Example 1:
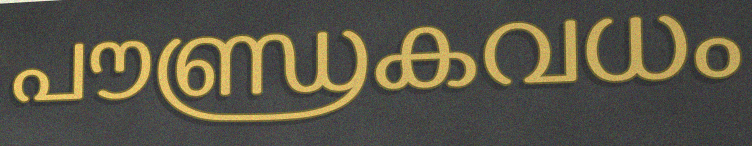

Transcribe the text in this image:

പൗണ്ഡ്രകവധം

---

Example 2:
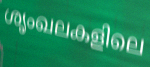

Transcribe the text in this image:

ശൃംഖലകളിലെ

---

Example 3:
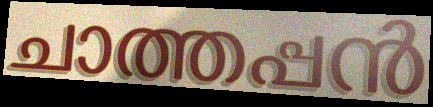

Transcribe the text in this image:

ചാത്തപ്പൻ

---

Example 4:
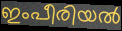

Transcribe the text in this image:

ഇംപീരിയൽ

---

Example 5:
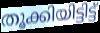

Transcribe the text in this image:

തൂക്കിയിട്ടിട്ട്